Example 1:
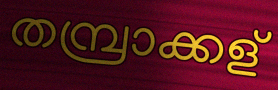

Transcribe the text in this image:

തമ്പ്രാക്കള്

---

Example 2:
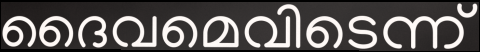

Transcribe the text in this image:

ദൈവമെവിടെന്ന്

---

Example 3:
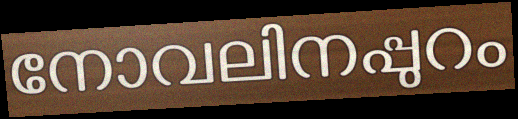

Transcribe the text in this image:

നോവലിനപ്പുറം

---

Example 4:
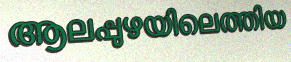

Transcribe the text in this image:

ആലപ്പുഴയിലെത്തിയ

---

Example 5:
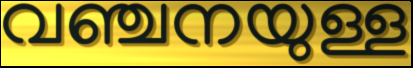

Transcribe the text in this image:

വഞ്ചനയുള്ള